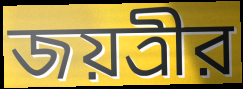
জয়ত্রীর